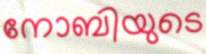
നോബിയുടെ